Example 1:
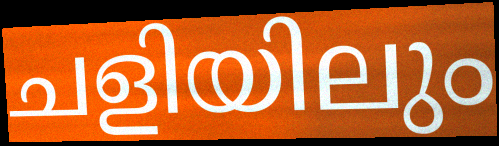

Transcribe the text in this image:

ചളിയിലും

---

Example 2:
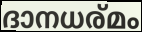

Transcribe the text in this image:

ദാനധര്മം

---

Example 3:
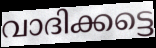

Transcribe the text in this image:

വാദിക്കട്ടെ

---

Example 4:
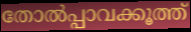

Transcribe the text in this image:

തോൽപ്പാവക്കൂത്ത്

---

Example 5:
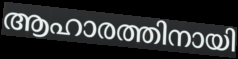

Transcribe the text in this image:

ആഹാരത്തിനായി